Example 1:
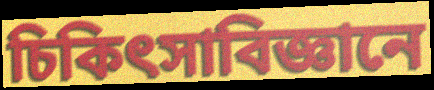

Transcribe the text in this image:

চিকিৎসাবিজ্ঞানে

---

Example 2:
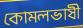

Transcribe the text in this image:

কোমলভাষী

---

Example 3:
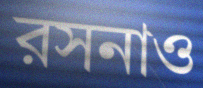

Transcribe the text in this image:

রসনাও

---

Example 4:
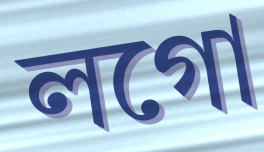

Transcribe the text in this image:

লগো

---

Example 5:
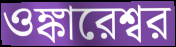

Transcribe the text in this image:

ওঙ্কারেশ্বর